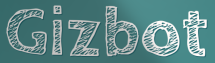
Gizbot